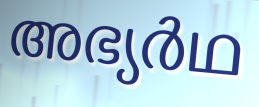
അഭ്യർഥ